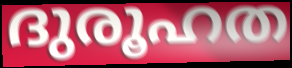
ദുരൂഹത